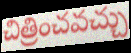
చిత్రించవచ్చు